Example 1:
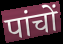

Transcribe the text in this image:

पांचों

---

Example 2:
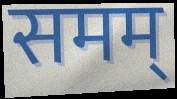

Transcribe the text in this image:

समम्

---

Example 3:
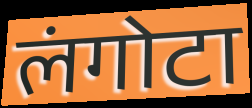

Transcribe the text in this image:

लंगोटा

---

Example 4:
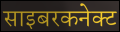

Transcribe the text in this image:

साइबरकनेक्ट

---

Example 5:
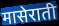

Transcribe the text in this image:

मासेराती